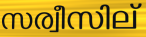
സര്വീസില്